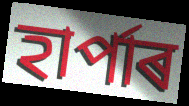
হাৰ্পাৰ